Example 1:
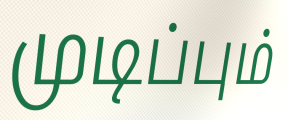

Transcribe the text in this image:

முடிப்பும்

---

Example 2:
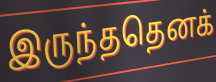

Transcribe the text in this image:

இருந்ததெனக்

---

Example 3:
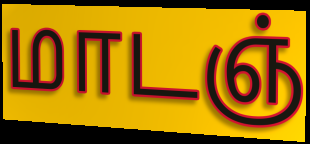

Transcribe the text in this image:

மாடஞ்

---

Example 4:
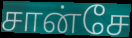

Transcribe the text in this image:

சான்சே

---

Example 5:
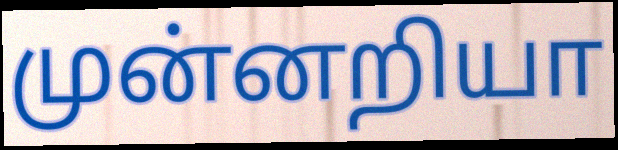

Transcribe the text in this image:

முன்னறியா